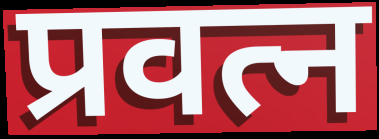
प्रवत्न